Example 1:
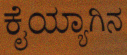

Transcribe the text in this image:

ಕೈಯ್ಯಾಗಿನ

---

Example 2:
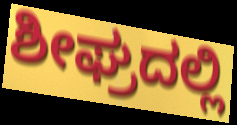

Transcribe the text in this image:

ಶೀಘ್ರದಲ್ಲಿ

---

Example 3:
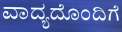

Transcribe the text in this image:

ವಾದ್ಯದೊಂದಿಗೆ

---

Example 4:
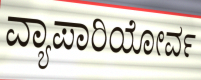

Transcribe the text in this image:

ವ್ಯಾಪಾರಿಯೋರ್ವ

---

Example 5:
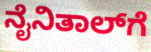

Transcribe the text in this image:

ನೈನಿತಾಲ್‌ಗೆ